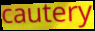
cautery